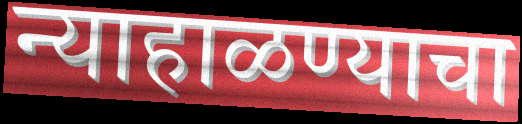
न्याहाळण्याचा